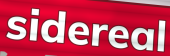
sidereal